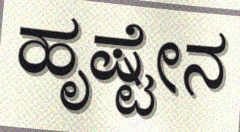
ಹೃಷ್ಟೇನ